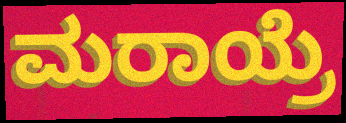
ಮರಾಯ್ರೆ